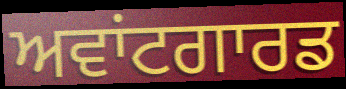
ਅਵਾਂਟਗਾਰਡ